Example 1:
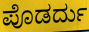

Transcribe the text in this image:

ಪೊಡರ್ದು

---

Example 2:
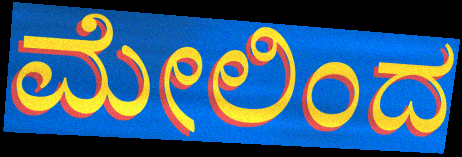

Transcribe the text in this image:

ಮೇಲಿಂದ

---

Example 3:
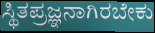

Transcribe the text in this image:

ಸ್ಥಿತಪ್ರಜ್ಞನಾಗಿರಬೇಕು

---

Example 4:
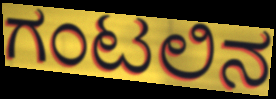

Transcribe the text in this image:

ಗಂಟಲಿನ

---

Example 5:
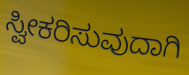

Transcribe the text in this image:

ಸ್ವೀಕರಿಸುವುದಾಗಿ